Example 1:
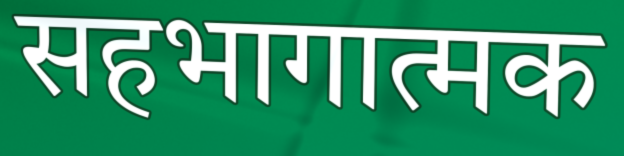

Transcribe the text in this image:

सहभागात्मक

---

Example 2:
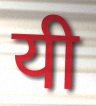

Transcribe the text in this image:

यी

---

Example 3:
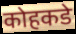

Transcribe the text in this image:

कोहकडे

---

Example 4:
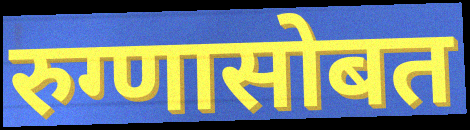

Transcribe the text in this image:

रुग्णासोबत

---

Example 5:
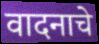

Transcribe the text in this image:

वादनाचे